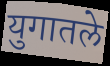
युगातले